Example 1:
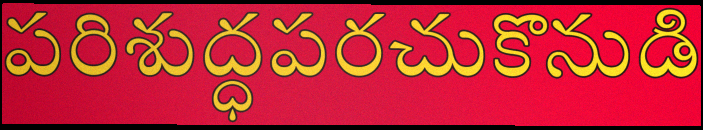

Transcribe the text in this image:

పరిశుద్ధపరచుకొనుడి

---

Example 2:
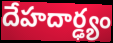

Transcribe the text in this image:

దేహదార్ఢ్యం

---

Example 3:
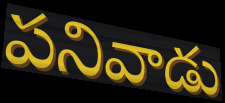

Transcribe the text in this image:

పనివాడు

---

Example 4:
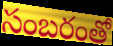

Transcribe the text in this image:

సంబరంతో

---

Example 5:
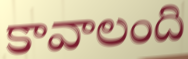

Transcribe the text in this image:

కావాలంది